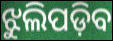
ଝୁଲିପଡ଼ିବ